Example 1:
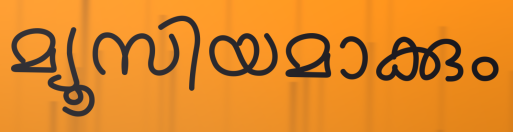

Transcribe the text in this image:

മ്യൂസിയമാക്കും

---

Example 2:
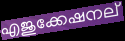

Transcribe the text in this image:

എജുക്കേഷനല്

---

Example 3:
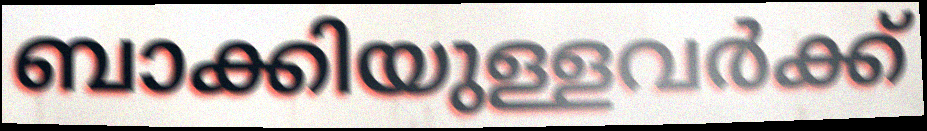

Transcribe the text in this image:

ബാക്കിയുള്ളവർക്ക്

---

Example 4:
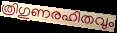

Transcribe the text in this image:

ത്രിഗുണരഹിതവും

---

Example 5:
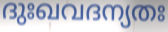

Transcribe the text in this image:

ദുഃഖവദന്യതഃ